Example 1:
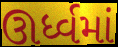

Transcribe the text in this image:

ઊર્ધ્વમાં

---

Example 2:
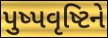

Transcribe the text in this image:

પુષ્પવૃષ્ટિને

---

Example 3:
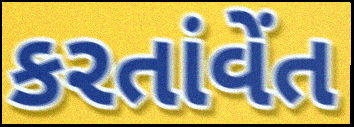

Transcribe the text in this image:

કરતાંવેંત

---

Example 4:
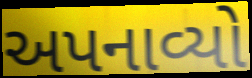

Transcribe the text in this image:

અપનાવ્યો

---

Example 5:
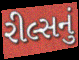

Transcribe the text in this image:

રીલ્સનું